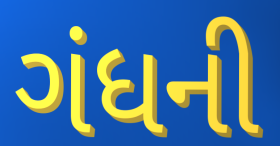
ગંધની